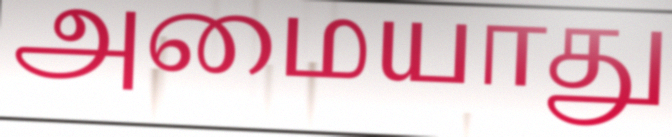
அமையாது